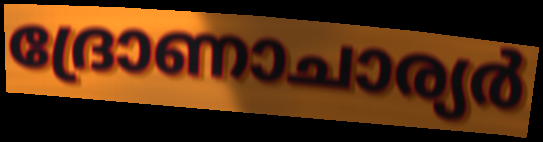
ദ്രോണാചാര്യർ